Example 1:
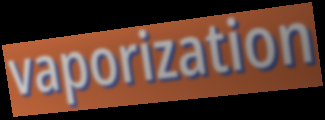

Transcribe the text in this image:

vaporization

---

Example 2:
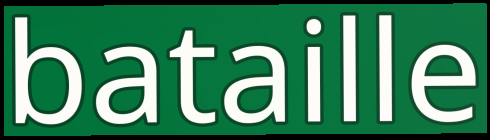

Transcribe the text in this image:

bataille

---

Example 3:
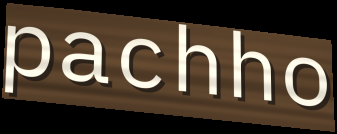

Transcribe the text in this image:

pachho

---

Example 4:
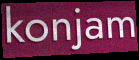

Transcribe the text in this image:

konjam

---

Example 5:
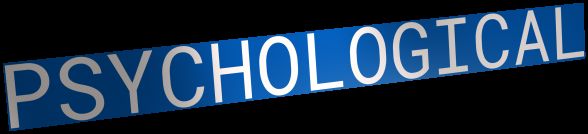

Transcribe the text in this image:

PSYCHOLOGICAL